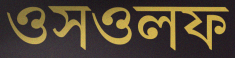
ওসওলফ